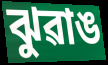
ঝুৱাঙ